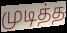
முடித்த